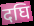
दघि